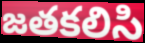
జతకలిసి